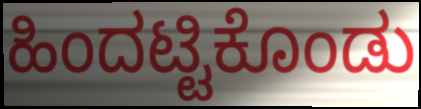
ಹಿಂದಟ್ಟಿಕೊಂಡು